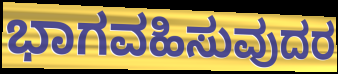
ಭಾಗವಹಿಸುವುದರ